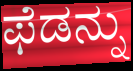
ಫೆಡನ್ನು